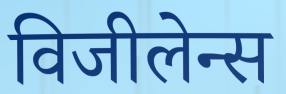
विजीलेन्स